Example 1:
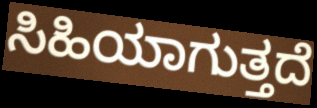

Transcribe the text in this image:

ಸಿಹಿಯಾಗುತ್ತದೆ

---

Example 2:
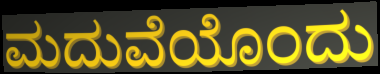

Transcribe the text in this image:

ಮದುವೆಯೊಂದು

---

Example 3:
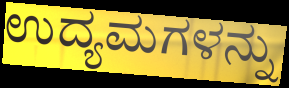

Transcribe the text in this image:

ಉದ್ಯಮಗಳನ್ನು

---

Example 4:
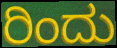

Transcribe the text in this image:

ರಿಂದು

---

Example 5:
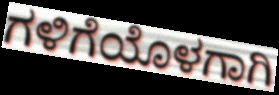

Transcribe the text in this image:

ಗಳಿಗೆಯೊಳಗಾಗಿ